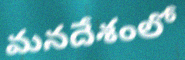
మనదేశంలో